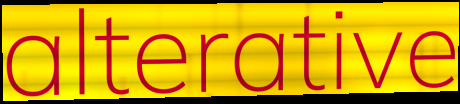
alterative